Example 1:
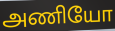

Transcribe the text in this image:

அணியோ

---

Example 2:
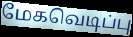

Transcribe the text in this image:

மேகவெடிப்பு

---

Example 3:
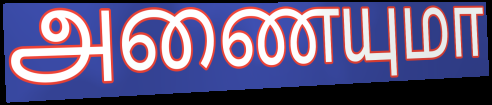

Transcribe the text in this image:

அணையுமா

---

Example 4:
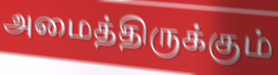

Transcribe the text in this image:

அமைத்திருக்கும்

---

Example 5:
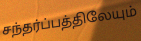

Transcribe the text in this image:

சந்தர்ப்பத்திலேயும்